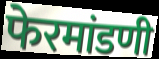
फेरमांडणी